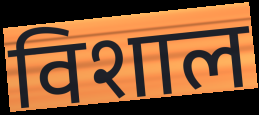
विशाल